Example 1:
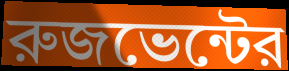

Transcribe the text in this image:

রুজভেন্টের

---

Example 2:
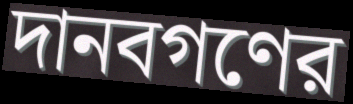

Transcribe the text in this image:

দানবগণের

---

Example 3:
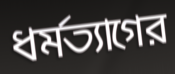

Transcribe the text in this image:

ধর্মত্যাগের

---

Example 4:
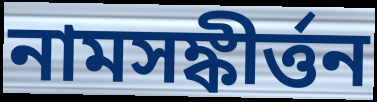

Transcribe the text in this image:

নামসঙ্কীর্ত্তন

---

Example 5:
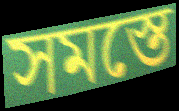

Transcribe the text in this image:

সমস্তে